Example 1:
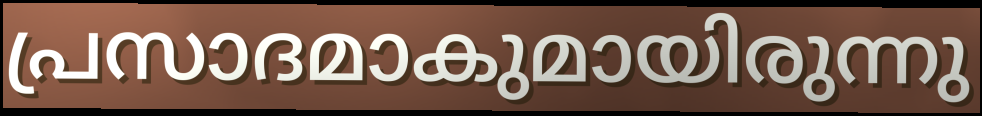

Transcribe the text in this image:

പ്രസാദമാകുമായിരുന്നു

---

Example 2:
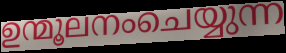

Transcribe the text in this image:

ഉന്മൂലനംചെയ്യുന്ന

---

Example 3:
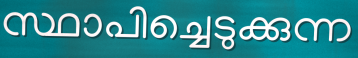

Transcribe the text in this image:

സ്ഥാപിച്ചെടുക്കുന്ന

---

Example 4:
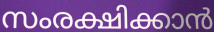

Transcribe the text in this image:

സംരക്ഷിക്കാൻ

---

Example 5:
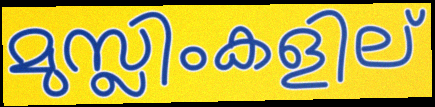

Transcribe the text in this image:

മുസ്ലിംകളില്